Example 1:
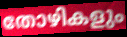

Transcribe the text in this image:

തോഴികളും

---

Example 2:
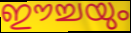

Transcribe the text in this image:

ഈച്ചയും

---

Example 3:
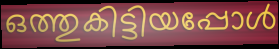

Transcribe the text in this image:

ഒത്തുകിട്ടിയപ്പോൾ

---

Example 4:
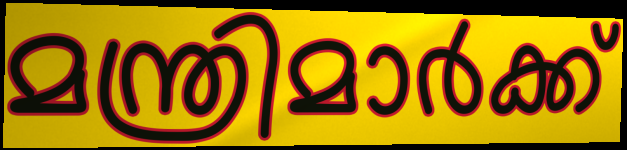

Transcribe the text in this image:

മന്ത്രിമാർക്ക്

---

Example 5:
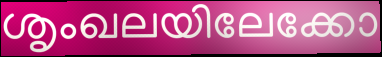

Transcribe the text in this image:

ശൃംഖലയിലേക്കോ